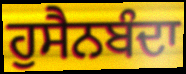
ਹੁਸੈਨਬੰਦਾ